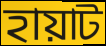
হায়াট